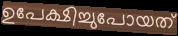
ഉപേക്ഷിച്ചുപോയത്